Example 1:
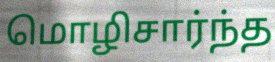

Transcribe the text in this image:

மொழிசார்ந்த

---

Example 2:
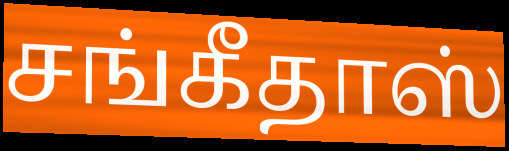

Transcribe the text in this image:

சங்கீதாஸ்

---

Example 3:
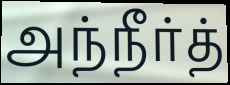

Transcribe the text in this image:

அந்நீர்த்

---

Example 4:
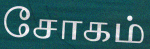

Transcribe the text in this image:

சோகம்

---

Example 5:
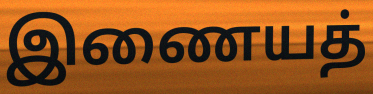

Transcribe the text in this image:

இணையத்